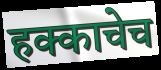
हक्काचेच